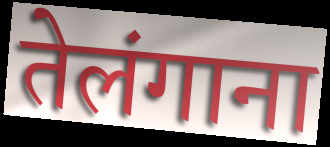
तेलंगाना